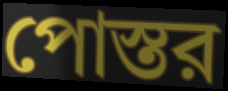
পোস্তর